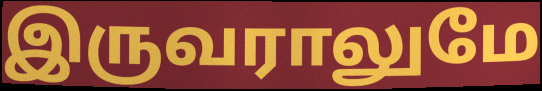
இருவராலுமே